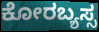
ಕೋರಬ್ಯಸ್ಸ